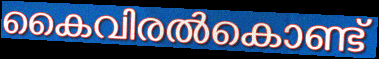
കൈവിരൽകൊണ്ട്